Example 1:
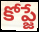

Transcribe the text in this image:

కోప్జే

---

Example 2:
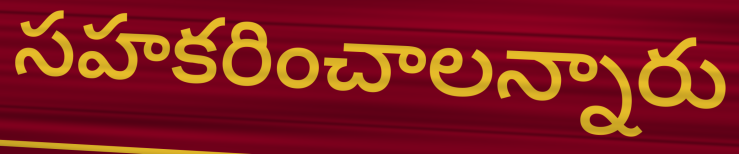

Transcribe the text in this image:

సహకరించాలన్నారు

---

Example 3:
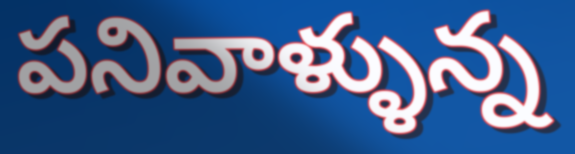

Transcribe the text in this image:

పనివాళ్ళున్న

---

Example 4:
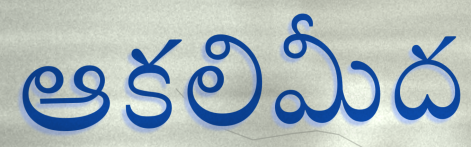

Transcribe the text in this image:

ఆకలిమీద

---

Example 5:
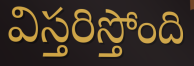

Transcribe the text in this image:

విస్తరిస్తోంది